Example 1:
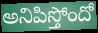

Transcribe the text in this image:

అనిపిస్తోందో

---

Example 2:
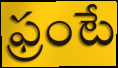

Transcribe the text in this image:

ఫ్రంటే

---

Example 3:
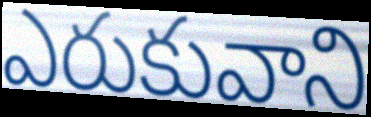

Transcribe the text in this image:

ఎరుకువాని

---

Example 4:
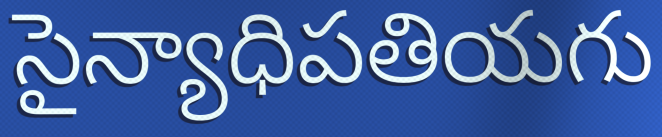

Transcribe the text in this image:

సైన్యాధిపతియగు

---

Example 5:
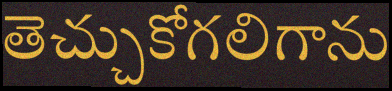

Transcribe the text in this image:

తెచ్చుకోగలిగాను